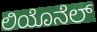
ಲಿಯೊನೆಲ್